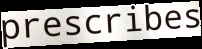
prescribes